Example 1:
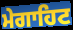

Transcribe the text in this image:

ਮੇਗਾਹਿਟ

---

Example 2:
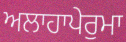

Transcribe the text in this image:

ਅਲਾਹਾਪੇਰੁਮਾ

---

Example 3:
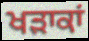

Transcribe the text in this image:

ਖੜਾਕਾਂ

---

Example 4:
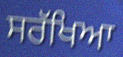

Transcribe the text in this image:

ਸਰੱਖਿਆ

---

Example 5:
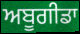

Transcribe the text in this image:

ਅਬੂਗੀਡਾ